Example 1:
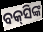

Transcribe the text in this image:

ବକ୍‌ସିଙ୍କ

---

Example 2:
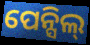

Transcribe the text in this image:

ପେନ୍ସିଲ୍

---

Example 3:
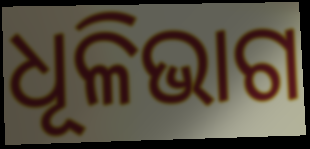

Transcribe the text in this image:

ଧୂଳିଭାଗ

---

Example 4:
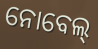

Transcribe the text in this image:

ନୋବେଲ୍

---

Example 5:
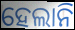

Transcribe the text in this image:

ହେଲାନି